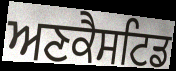
ਅਣਕੈਸਟਿਡ